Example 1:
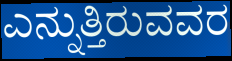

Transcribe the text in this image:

ಎನ್ನುತ್ತಿರುವವರ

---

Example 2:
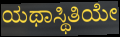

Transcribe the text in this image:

ಯಥಾಸ್ಥಿತಿಯೇ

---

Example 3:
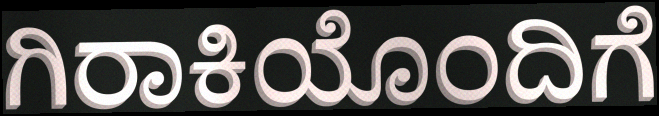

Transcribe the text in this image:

ಗಿರಾಕಿಯೊಂದಿಗೆ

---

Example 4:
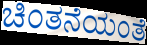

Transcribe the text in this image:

ಚಿಂತನೆಯಂತೆ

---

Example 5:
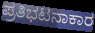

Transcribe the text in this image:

ಪ್ರತಿಭಟನಾಕಾರ